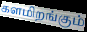
களமிறங்கும்